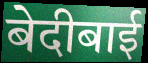
बेदीबाई